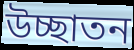
উচ্ছাতন